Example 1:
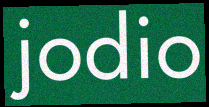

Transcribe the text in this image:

jodio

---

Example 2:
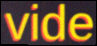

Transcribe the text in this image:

vide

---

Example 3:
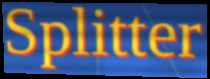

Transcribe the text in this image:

Splitter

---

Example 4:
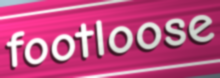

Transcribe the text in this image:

footloose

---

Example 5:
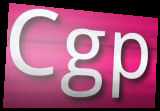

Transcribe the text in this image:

Cgp